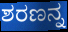
ಶರಣನ್ನ